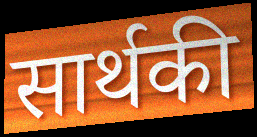
सार्थकी